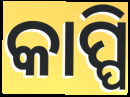
କାପ୍ପି